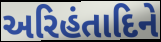
અરિહંતાદિને